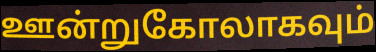
ஊன்றுகோலாகவும்